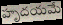
హృదయమే